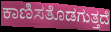
ಕಾಣಿಸತೊಡಗುತ್ತದೆ